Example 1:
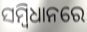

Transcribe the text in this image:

ସମ୍ବିଧାନରେ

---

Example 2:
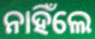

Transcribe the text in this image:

ନାହିଁଲେ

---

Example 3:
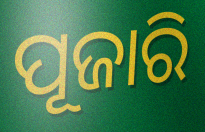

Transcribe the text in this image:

ପୂଜାରି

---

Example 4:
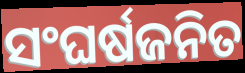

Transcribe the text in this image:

ସଂଘର୍ଷଜନିତ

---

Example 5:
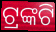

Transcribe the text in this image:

ଟ୍ରଙ୍କଟି